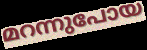
മറന്നുപോയ